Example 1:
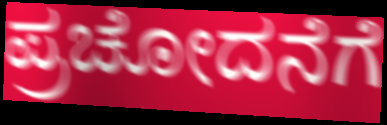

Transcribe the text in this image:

ಪ್ರಚೋದನೆಗೆ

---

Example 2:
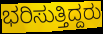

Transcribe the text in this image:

ಭರಿಸುತ್ತಿದ್ದರು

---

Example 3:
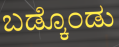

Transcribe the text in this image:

ಬಡ್ಕೊಂಡು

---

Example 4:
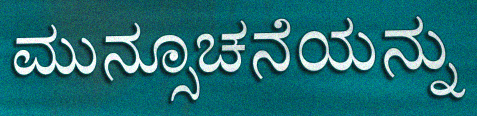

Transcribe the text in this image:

ಮುನ್ಸೂಚನೆಯನ್ನು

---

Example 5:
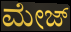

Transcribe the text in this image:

ಮೇಜ್